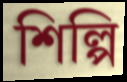
শিল্পি